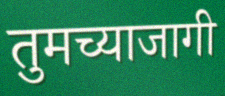
तुमच्याजागी